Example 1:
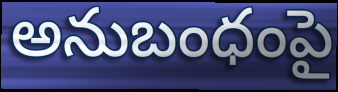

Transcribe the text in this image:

అనుబంధంపై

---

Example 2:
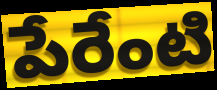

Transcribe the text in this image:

పేరేంటి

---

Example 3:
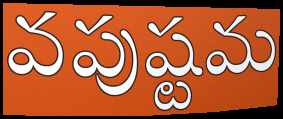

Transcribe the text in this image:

వపుష్టమ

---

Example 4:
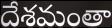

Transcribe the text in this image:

దేశమంతా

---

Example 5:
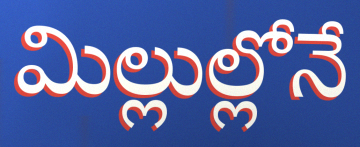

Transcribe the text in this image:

మిల్లుల్లోనే